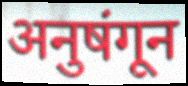
अनुषंगून